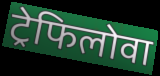
ट्रेफिलोवा